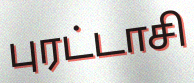
புரட்டாசி